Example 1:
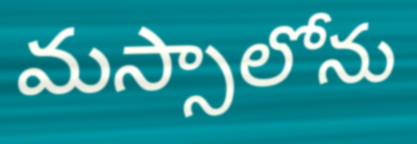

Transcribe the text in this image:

మస్సాలోను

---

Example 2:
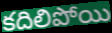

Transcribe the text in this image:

కదిలిపోయి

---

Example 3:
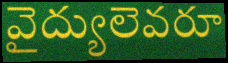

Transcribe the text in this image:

వైద్యులెవరూ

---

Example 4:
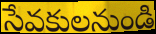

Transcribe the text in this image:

సేవకులనుండి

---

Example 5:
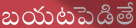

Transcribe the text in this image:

బయటపెడితే